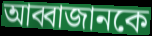
আব্বাজানকে